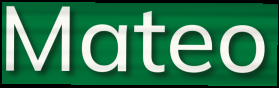
Mateo